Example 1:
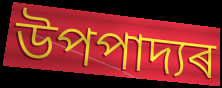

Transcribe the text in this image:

উপপাদ্যৰ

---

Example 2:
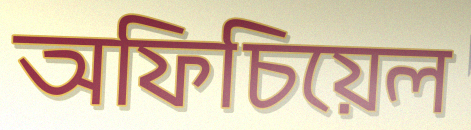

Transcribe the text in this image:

অফিচিয়েল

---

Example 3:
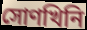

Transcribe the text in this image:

সোণখিনি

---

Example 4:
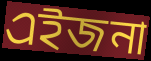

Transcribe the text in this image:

এইজনা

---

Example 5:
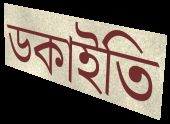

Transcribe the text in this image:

ডকাইতি